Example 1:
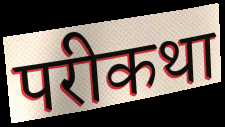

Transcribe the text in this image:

परीकथा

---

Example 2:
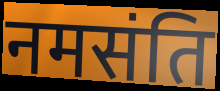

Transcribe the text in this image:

नमसंति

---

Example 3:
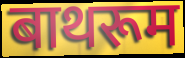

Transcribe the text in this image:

बाथरूम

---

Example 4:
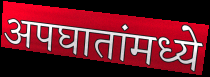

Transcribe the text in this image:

अपघातांमध्ये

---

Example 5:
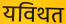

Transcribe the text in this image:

यविथत